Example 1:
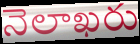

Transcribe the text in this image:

నెలాఖరు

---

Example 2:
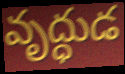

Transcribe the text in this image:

వృద్ధుడ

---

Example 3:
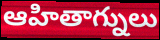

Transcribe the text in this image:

ఆహితాగ్నులు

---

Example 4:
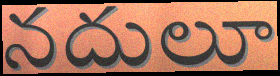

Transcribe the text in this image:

నదులూ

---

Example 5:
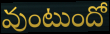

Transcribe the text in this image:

వుంటుందో